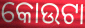
କୋଉଟା